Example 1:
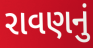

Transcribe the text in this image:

રાવણનું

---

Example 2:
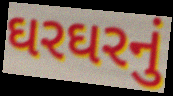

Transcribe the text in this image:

ઘરઘરનું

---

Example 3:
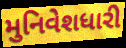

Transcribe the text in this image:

મુનિવેશધારી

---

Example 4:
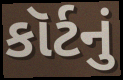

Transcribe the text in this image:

કૉર્ટનું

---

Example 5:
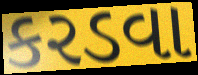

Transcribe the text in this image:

કરડવા